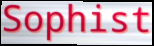
Sophist